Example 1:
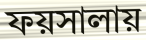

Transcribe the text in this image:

ফয়সালায়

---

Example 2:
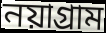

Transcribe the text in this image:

নয়াগ্রাম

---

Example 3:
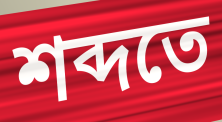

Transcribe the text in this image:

শব্দতে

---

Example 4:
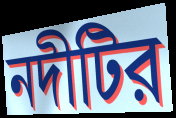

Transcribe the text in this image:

নদীটির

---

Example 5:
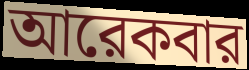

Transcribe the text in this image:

আরেকবার